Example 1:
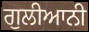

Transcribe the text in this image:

ਗੁਲੀਆਨੀ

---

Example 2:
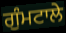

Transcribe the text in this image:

ਗੁੰਮਟਾਲੇ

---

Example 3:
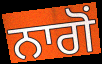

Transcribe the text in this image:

ਨਾਗੋਂ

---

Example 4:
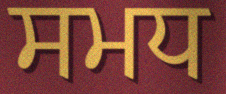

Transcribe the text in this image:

ਸਮਧ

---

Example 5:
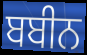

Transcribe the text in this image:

ਬਬੀਨ